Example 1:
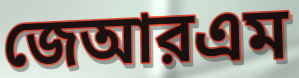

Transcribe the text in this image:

জেআরএম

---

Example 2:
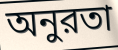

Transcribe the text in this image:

অনুরতা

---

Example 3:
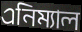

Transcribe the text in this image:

এনিম্যাল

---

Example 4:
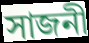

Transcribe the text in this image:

সাজনী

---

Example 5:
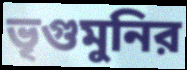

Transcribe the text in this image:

ভৃগুমুনির